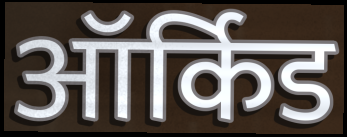
ऑर्किड